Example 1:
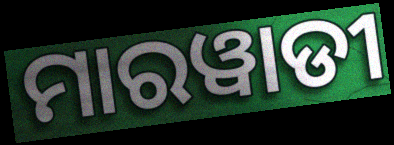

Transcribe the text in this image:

ମାରୱାଡୀ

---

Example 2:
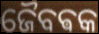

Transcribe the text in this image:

ଜୈବଵକ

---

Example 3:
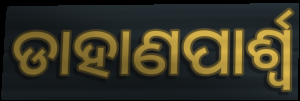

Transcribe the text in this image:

ଡାହାଣପାର୍ଶ୍ୱ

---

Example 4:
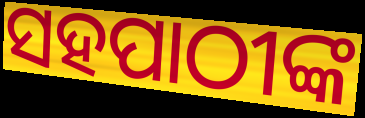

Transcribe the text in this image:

ସହପାଠୀଙ୍କ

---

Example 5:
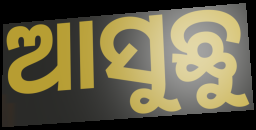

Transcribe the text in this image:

ଆସୁଛୁ